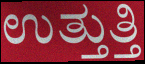
ಉತ್ತುತ್ತಿ